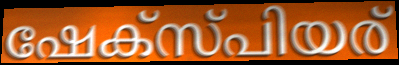
ഷേക്സ്പിയര്